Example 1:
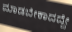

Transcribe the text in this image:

ಮಾಡಬೇಕಾದದ್ದೇ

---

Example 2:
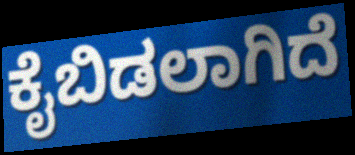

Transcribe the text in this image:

ಕೈಬಿಡಲಾಗಿದೆ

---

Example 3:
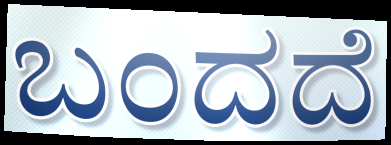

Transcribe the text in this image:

ಬಂದದೆ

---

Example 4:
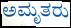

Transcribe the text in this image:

ಅಮೃತರು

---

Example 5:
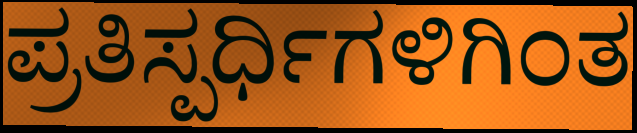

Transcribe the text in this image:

ಪ್ರತಿಸ್ಪರ್ಧಿಗಳಿಗಿಂತ